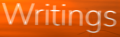
Writings